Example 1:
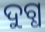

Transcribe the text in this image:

ଦୁଗ୍ଧ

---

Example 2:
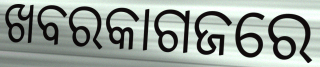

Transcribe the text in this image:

ଖବରକାଗଜରେ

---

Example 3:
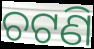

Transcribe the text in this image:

ଚଟଣି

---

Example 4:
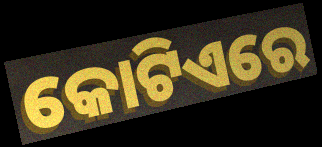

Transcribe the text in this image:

କୋଟିଏରେ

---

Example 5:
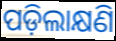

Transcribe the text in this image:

ପଡ଼ିଲାକ୍ଷଣି